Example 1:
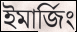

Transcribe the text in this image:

ইমার্জিং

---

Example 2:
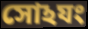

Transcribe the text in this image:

সোঽযং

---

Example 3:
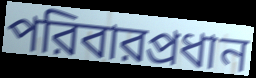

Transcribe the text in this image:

পরিবারপ্রধান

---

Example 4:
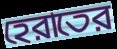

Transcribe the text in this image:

হেরাতের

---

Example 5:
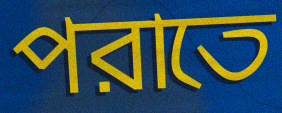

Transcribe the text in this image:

পরাতে